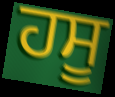
ਹਸੂ